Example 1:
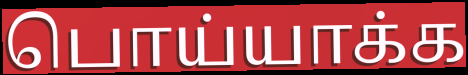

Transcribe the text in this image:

பொய்யாக்க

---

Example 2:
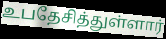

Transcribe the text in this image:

உபதேசித்துள்ளார்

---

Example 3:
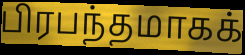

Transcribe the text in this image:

பிரபந்தமாகக்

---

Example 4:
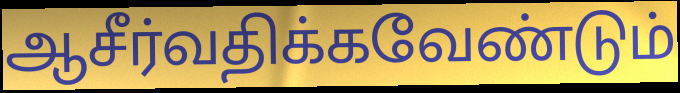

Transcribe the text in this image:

ஆசீர்வதிக்கவேண்டும்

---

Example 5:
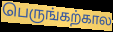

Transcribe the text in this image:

பெருங்கற்கால